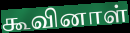
கூவினாள்